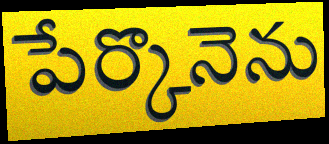
పేర్కొనెను